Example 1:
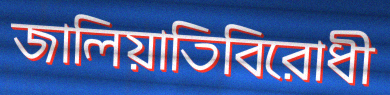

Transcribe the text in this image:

জালিয়াতিবিরোধী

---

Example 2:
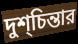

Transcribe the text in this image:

দুশ্‌চিন্তার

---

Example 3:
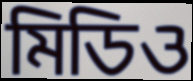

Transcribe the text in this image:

মিডিও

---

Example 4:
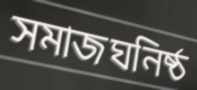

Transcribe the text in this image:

সমাজঘনিষ্ঠ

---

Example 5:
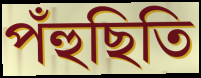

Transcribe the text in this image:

পঁহুছিতি